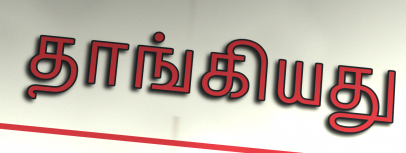
தாங்கியது